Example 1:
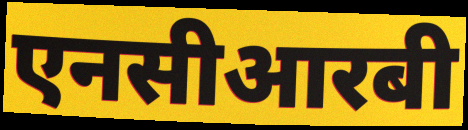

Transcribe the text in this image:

एनसीआरबी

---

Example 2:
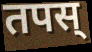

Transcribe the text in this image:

तपस्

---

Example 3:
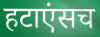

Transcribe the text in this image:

हटाएंसच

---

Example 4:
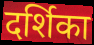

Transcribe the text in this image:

दर्शिका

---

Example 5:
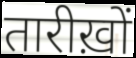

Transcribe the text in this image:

तारीख़ों